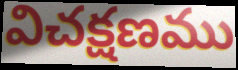
విచక్షణము